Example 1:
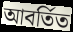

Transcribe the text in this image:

আবর্তিত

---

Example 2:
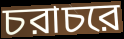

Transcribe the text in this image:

চরাচরে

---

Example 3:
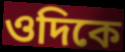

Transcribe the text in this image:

ওদিকে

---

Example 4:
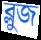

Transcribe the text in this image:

ব্লুজ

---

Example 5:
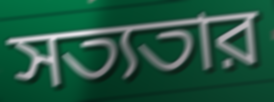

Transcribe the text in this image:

সত্যতার